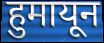
हुमायून